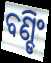
ବଣ୍ଡିଂ